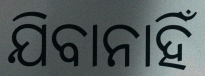
ଯିବାନାହିଁ